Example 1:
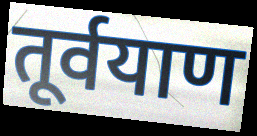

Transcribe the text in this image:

तूर्वयाण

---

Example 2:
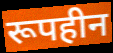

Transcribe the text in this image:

रूपहीन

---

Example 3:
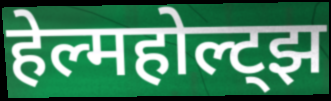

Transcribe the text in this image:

हेल्महोल्ट्झ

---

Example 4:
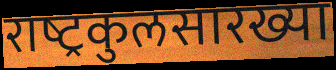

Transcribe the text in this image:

राष्ट्रकुलसारख्या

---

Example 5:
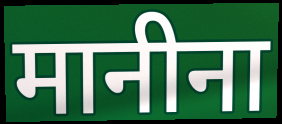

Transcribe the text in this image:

मानीना